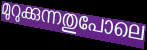
മുറുക്കുന്നതുപോലെ